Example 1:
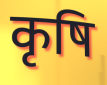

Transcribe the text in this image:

कृषि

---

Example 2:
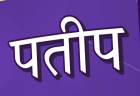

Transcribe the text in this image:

पतीप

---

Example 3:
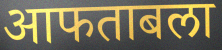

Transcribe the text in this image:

आफताबला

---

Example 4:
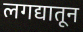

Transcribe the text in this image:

लगद्यातून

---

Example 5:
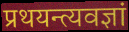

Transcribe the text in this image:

प्रथयन्त्यवज्ञां